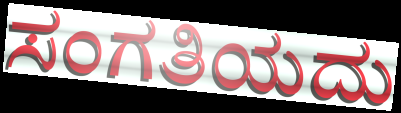
ಸಂಗತಿಯದು